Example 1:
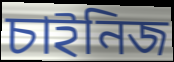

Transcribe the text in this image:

চাইনিজ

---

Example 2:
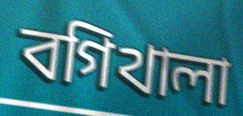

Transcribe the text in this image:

বগিথালা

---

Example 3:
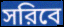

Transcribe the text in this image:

সরিবে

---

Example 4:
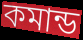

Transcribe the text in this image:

কমান্ড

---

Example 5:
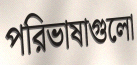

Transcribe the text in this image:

পরিভাষাগুলো